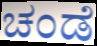
ಚಂಡೆ